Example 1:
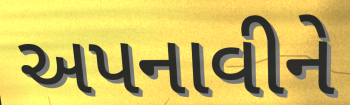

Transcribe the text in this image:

અપનાવીને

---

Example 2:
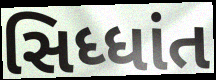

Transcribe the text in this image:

સિધ્ધાંત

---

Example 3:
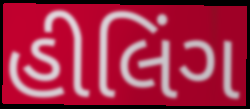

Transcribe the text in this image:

હીલિંગ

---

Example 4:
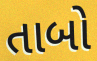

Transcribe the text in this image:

તાબો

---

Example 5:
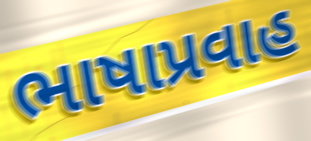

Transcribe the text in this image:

ભાષાપ્રવાહ